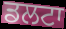
ਡਲਟਾ